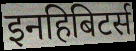
इनहिबिटर्स